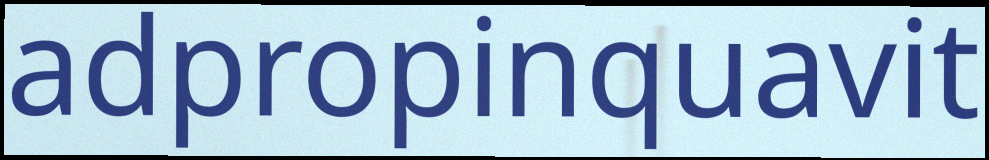
adpropinquavit